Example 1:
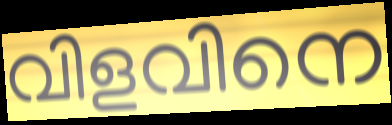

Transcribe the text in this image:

വിളവിനെ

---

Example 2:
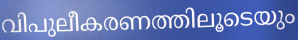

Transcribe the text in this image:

വിപുലീകരണത്തിലൂടെയും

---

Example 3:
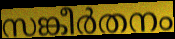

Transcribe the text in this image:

സങ്കീർതനം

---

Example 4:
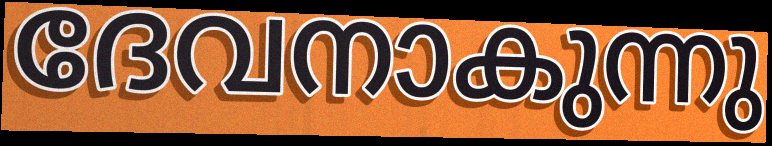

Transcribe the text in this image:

ദേവനാകുന്നു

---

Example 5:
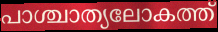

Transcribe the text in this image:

പാശ്ചാത്യലോകത്ത്